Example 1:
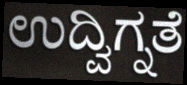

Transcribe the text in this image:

ಉದ್ವಿಗ್ನತೆ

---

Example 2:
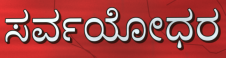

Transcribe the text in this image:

ಸರ್ವಯೋಧರ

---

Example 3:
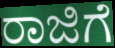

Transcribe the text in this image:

ರಾಜಿಗೆ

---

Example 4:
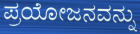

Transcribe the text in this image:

ಪ್ರಯೋಜನವನ್ನು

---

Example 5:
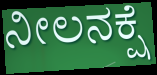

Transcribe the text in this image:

ನೀಲನಕ್ಷೆ